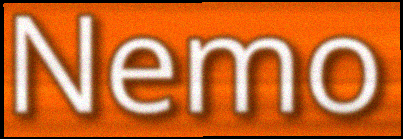
Nemo